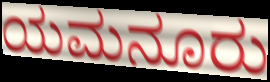
ಯಮನೂರು